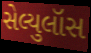
સેલ્યુલૉસ